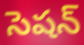
సెషన్